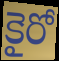
కైరో